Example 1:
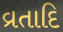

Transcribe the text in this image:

વ્રતાદિ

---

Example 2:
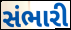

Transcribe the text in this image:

સંભારી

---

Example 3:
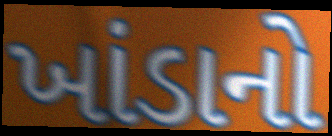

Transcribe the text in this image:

ખાંડાનો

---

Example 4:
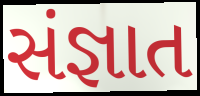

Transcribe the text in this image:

સંજ્ઞાત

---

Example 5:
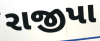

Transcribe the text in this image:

રાજીપા